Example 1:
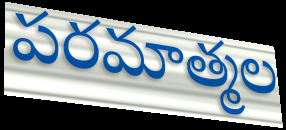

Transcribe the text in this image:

పరమాత్మల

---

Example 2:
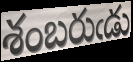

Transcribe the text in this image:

శంబరుఁడు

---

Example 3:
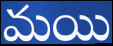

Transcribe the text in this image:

మయి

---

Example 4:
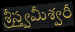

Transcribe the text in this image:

శ్రీస్త్వమీశ్వరీ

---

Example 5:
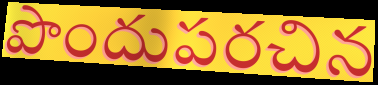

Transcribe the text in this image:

పొందుపరచిన